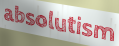
absolutism